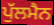
ਪੁੱਲਮੈਨ